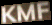
KMF